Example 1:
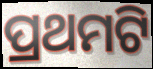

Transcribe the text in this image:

ପ୍ରଥମଟି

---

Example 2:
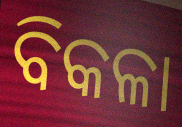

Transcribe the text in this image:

ବିକଳା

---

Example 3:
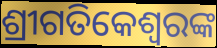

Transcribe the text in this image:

ଶ୍ରୀଗତିକେଶ୍ବରଙ୍କ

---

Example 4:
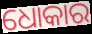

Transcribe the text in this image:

ଧୋକାର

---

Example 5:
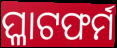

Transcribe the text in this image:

ପ୍ଳାଟଫର୍ମ